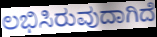
ಲಭಿಸಿರುವುದಾಗಿದೆ